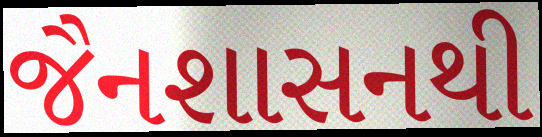
જૈનશાસનથી